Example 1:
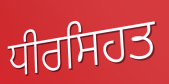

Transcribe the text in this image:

ਧੀਰਸਿਹਤ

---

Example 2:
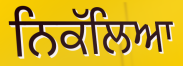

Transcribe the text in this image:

ਨਿਕੱਲਿਆ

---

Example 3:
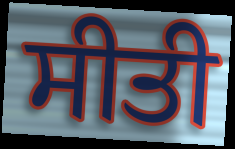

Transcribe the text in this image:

ਸੀਤੀ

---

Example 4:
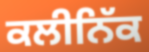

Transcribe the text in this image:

ਕਲੀਨਿੱਕ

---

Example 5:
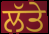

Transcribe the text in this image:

ਲੱਤੇ